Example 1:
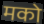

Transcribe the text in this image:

मको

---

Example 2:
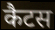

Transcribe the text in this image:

कैटस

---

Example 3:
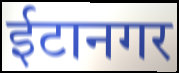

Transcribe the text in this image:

ईटानगर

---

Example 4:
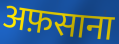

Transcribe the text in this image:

अफ़साना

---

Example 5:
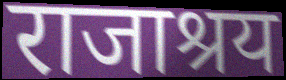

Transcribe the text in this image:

राजाश्रय